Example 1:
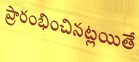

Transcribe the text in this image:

ప్రారంభించినట్లయితే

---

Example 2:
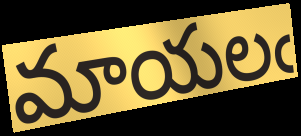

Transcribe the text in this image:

మాయలఁ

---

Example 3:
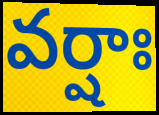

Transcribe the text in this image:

వర్షాః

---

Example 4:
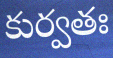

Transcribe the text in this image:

కుర్వతః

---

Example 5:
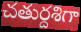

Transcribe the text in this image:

చతుర్దశిగా